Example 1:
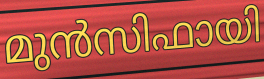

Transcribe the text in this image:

മുൻസിഫായി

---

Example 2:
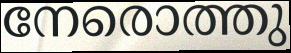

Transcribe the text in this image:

നേരൊത്തു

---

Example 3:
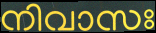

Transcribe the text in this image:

നിവാസഃ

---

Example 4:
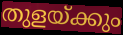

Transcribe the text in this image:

തുളയ്ക്കും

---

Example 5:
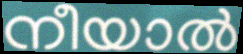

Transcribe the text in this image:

നീയാൽ